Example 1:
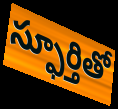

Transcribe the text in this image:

స్ఫూర్తితో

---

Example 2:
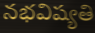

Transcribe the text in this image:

నభవిష్యతి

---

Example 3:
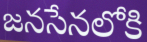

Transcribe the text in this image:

జనసేనలోకి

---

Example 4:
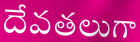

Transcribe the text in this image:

దేవతలుగా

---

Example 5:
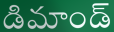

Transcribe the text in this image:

డిమాండ్